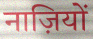
नाज़ियों